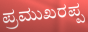
ಪ್ರಮುಖರಪ್ಪ